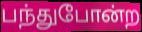
பந்துபோன்ற